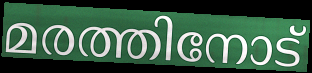
മരത്തിനോട്